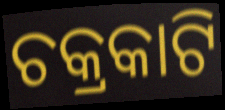
ଚକ୍ରକାଟି